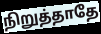
நிறுத்தாதே